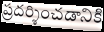
ప్రదర్శించడానికి